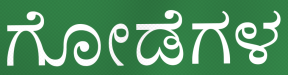
ಗೋಡೆಗಳ